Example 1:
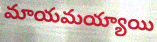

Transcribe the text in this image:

మాయమయ్యాయి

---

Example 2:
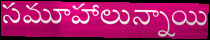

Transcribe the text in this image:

సమూహాలున్నాయి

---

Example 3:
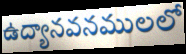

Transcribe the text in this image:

ఉద్యానవనములలో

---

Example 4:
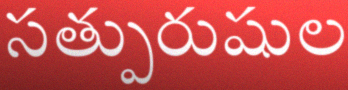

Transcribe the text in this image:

సత్పురుషుల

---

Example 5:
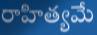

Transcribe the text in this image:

రాహిత్యమే